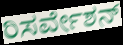
ರಿಸರ್ವೇಶನ್